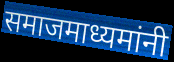
समाजमाध्यमांनी